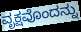
ವೃಕ್ಷವೊಂದನ್ನು